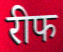
रीफ